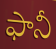
ఫానీ